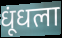
धूंधला